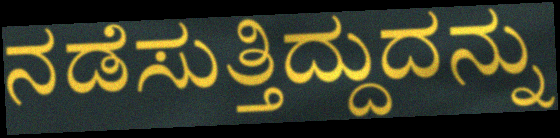
ನಡೆಸುತ್ತಿದ್ದುದನ್ನು